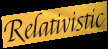
Relativistic